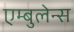
एम्बुलेन्स